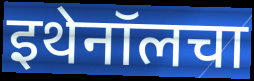
इथेनॉलचा